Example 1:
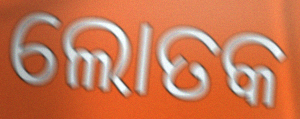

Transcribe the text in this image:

ଲୋତକ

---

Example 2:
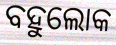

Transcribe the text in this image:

ବହୁଲୋକ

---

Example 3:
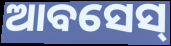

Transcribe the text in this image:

ଆବସେସ୍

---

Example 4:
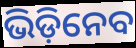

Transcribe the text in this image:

ଭିଡ଼ିନେବ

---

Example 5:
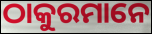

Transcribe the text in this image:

ଠାକୁରମାନେ